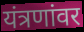
यंत्रणांवर